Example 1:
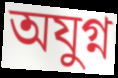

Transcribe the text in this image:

অযুগ্ন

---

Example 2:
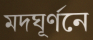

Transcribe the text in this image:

মদঘূর্ণনে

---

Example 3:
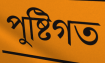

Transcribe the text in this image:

পুষ্টিগত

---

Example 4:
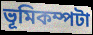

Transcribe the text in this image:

ভূমিকম্পটা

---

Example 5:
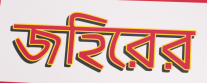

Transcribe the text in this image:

জহিরের